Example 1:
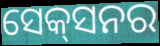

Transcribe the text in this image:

ସେକ୍‌ସନର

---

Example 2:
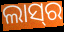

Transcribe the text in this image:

ଲାସ୍‌ର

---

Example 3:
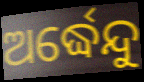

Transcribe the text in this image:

ଅର୍ଦ୍ଧେନ୍ଦୁ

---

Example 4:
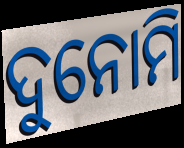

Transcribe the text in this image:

ଦୁନୋମି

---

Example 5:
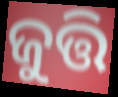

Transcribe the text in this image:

ଜୁତ୍ତି